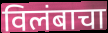
विलंबाचा